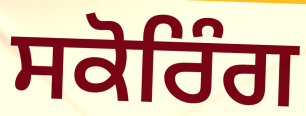
ਸਕੋਰਿੰਗ